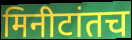
मिनीटांतच